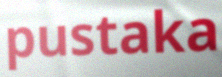
pustaka